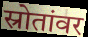
स्रोतांवर